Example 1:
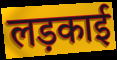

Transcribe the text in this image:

लड़काई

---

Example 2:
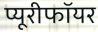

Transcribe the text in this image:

प्यूरीफॉयर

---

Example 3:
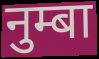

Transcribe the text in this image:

नुम्बा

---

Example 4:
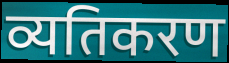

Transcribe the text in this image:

व्यतिकरण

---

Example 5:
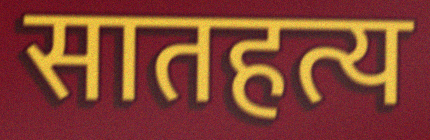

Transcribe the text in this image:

सातहत्य